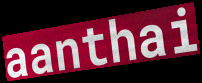
aanthai